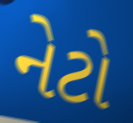
નેટો